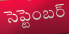
సెప్టెంబర్